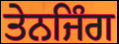
ਤੇਨਜਿੰਗ